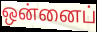
ஒன்னைப்